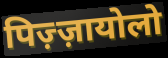
पिज़्ज़ायोलो